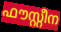
ഫൗസ്റ്റീന